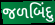
જળબિંદુ